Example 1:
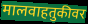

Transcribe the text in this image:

मालवाहतुकीवर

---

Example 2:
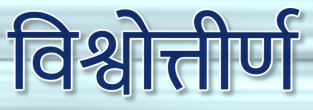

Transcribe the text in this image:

विश्वोत्तीर्ण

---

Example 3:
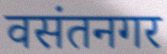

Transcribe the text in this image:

वसंतनगर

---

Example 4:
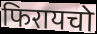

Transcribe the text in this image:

फिरायचो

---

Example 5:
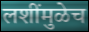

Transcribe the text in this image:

लशींमुळेच